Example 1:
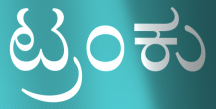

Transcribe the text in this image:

ಟ್ರಂಕು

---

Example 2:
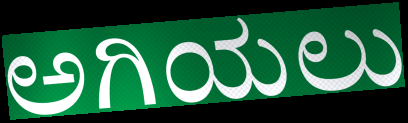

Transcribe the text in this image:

ಅಗಿಯಲು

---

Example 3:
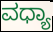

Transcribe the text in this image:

ವಧ್ಯಾ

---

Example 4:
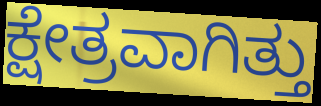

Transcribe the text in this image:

ಕ್ಷೇತ್ರವಾಗಿತ್ತು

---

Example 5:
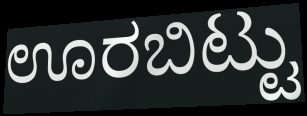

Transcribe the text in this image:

ಊರಬಿಟ್ಟು